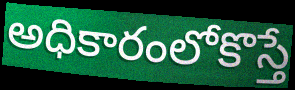
అధికారంలోకొస్తే